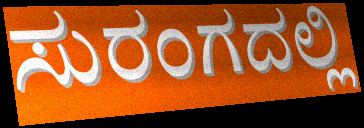
ಸುರಂಗದಲ್ಲಿ